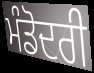
ਮੰਡੋਦਰੀ